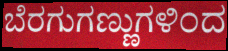
ಬೆರಗುಗಣ್ಣುಗಳಿಂದ